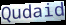
Qudaid